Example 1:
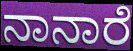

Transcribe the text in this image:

ನಾನಾರೆ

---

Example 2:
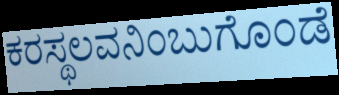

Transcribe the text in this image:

ಕರಸ್ಥಲವನಿಂಬುಗೊಂಡೆ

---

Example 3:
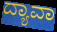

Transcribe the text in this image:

ದ್ಯಾವಾ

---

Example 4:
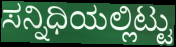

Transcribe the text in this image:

ಸನ್ನಿಧಿಯಲ್ಲಿಟ್ಟು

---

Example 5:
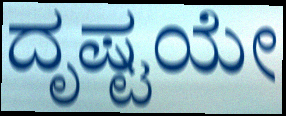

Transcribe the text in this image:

ದೃಷ್ಟಯೇ